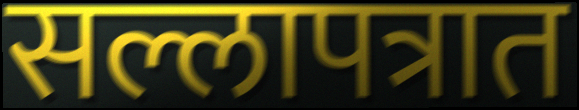
सल्लापत्रात